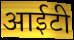
आईटी